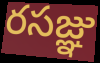
రసజ్ఞు